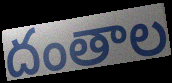
దంతాల